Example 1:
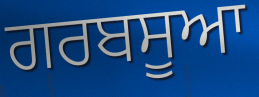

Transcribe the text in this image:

ਗਰਬਸੂਆ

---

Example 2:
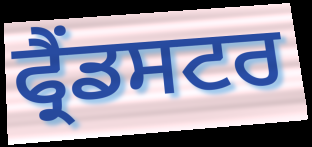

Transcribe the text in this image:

ਫ੍ਰੈਂਡਸਟਰ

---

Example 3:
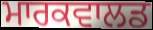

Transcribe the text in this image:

ਮਾਰਕਵਾਲਡ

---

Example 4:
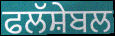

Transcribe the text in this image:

ਫਲੱਸ਼ੇਬਲ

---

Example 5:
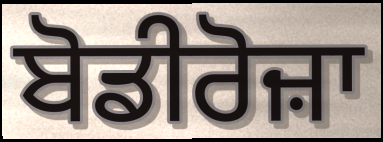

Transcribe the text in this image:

ਬੋਡੀਰੋਜ਼ਾ